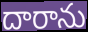
దారాను